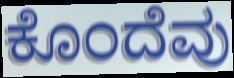
ಕೊಂದೆವು